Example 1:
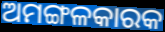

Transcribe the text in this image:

ଅମଙ୍ଗଳକାରକ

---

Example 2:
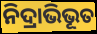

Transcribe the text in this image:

ନିଦ୍ରାଭିଭୂତ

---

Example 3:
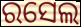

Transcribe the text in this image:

ରସେଲ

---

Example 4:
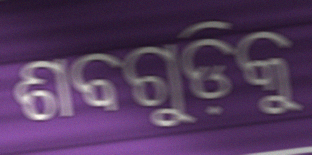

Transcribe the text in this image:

ଶବଗୁଡ଼ିକୁ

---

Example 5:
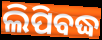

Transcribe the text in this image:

ଲିପିବଦ୍ଧ